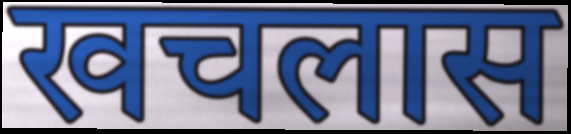
खचलास